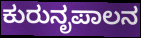
ಕುರುನೃಪಾಲನ